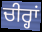
ਚੀਰ੍ਹਾਂ